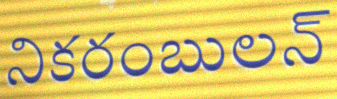
నికరంబులన్